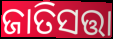
ଜାତିସତ୍ତା